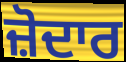
ਜ਼ੋਦਾਰ